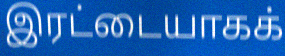
இரட்டையாகக்